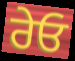
ਰੇਓ